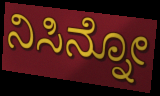
ನಿಸಿನ್ನೋ